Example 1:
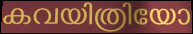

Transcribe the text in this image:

കവയിത്രിയോ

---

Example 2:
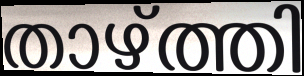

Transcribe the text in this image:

താഴ്ത്തി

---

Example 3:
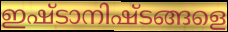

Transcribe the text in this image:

ഇഷ്ടാനിഷ്ടങ്ങളെ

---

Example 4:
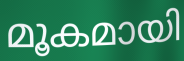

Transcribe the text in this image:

മൂകമായി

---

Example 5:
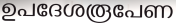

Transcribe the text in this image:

ഉപദേശരൂപേണ